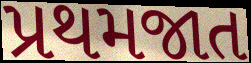
પ્રથમજાત